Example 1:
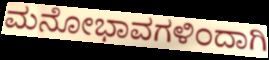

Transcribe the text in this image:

ಮನೋಭಾವಗಳಿಂದಾಗಿ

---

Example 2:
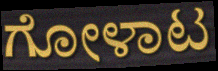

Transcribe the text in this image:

ಗೋಳಾಟ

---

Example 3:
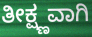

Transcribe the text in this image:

ತೀಕ್ಷ್ಣವಾಗಿ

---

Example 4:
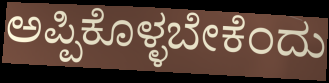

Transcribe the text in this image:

ಅಪ್ಪಿಕೊಳ್ಳಬೇಕೆಂದು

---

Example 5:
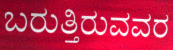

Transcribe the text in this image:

ಬರುತ್ತಿರುವವರ